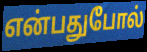
என்பதுபோல்